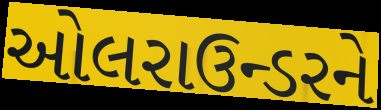
ઓલરાઉન્ડરને